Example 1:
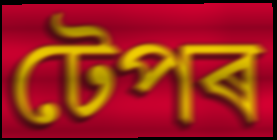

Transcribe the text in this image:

টেপৰ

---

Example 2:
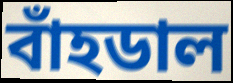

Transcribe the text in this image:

বাঁহডাল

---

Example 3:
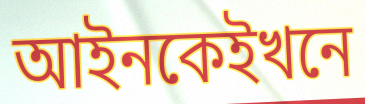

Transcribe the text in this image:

আইনকেইখনে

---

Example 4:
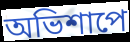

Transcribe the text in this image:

অভিশাপে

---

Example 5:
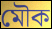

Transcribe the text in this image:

মৌক